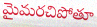
మైమరచిపోతూ